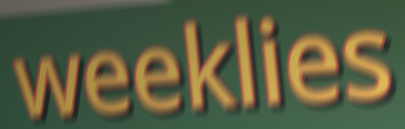
weeklies